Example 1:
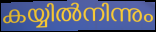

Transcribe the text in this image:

കയ്യിൽനിന്നും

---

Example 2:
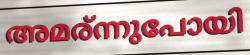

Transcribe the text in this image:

അമര്ന്നുപോയി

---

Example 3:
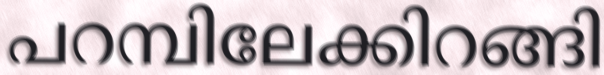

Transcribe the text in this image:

പറമ്പിലേക്കിറങ്ങി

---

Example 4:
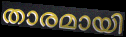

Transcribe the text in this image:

താരമായി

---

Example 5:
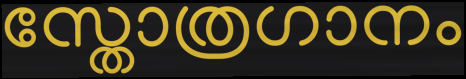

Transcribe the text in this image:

സ്തോത്രഗാനം